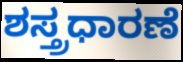
ಶಸ್ತ್ರಧಾರಣೆ